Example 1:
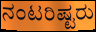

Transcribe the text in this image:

ನಂಟರಿಷ್ಟರು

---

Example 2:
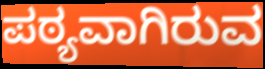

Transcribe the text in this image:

ಪಠ್ಯವಾಗಿರುವ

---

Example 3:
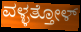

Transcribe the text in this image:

ವಳ್ಳತ್ತೋಳ್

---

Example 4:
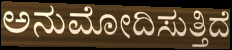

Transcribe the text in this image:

ಅನುಮೋದಿಸುತ್ತಿದೆ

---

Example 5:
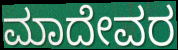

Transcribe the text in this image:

ಮಾದೇವರ